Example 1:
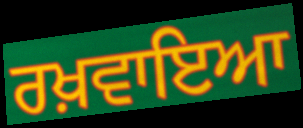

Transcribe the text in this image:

ਰਖ਼ਵਾਇਆ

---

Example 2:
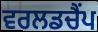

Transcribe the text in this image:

ਵਰਲਡਚੈਂਪ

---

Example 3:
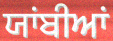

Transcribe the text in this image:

ਯਾਂਬੀਆਂ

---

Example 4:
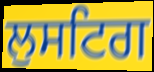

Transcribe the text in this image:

ਲੁਸਟਿਗ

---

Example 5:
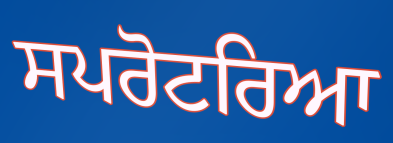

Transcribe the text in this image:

ਸਪਰੋਟਰਿਆ